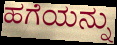
ಹಗೆಯನ್ನು